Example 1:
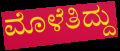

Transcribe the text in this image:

ಮೊಳೆತಿದ್ದು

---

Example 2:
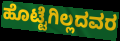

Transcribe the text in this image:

ಹೊಟ್ಟೆಗಿಲ್ಲದವರ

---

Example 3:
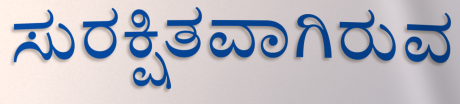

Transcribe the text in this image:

ಸುರಕ್ಷಿತವಾಗಿರುವ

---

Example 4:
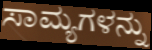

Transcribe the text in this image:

ಸಾಮ್ಯಗಳನ್ನು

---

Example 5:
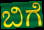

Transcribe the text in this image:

ಬಿಗೆ